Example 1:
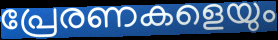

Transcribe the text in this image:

പ്രേരണകളെയും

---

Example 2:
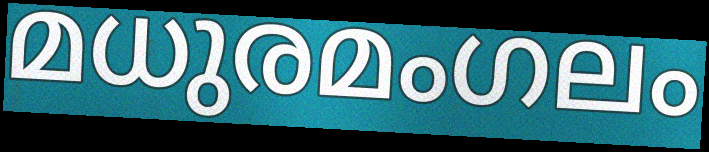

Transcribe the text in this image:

മധുരമംഗലം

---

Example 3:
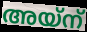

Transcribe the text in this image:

അയ്ന്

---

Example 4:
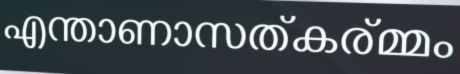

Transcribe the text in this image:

എന്താണാസത്കര്മ്മം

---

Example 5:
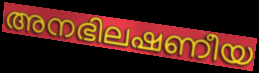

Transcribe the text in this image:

അനഭിലഷണീയ